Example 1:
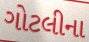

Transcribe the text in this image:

ગોટલીના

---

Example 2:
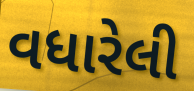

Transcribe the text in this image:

વધારેલી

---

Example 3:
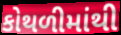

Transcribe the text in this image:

કોથળીમાંથી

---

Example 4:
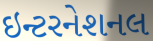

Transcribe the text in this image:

ઇન્ટરનેશનલ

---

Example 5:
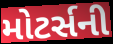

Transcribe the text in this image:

મોટર્સની